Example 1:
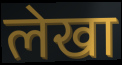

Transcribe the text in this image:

लेखा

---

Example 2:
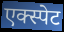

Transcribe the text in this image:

एक्स्पेट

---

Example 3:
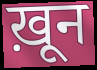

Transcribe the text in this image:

ख़ून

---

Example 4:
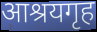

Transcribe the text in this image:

आश्रयगृह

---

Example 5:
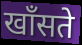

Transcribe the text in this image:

खाँसते